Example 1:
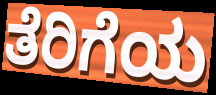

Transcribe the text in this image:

ತೆರಿಗೆಯ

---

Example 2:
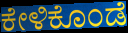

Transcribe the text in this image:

ಕೇಳಿಕೊಂಡೆ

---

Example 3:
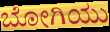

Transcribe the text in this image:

ಬೋಗಿಯು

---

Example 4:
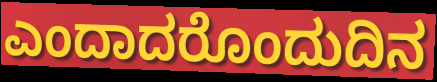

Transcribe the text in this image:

ಎಂದಾದರೊಂದುದಿನ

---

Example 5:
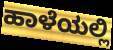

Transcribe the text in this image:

ಹಾಳೆಯಲ್ಲಿ